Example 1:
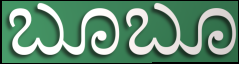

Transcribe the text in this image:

ಬೂಬೂ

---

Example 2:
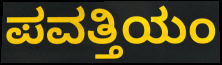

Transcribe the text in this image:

ಪವತ್ತಿಯಂ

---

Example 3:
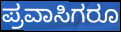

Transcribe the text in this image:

ಪ್ರವಾಸಿಗರೂ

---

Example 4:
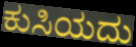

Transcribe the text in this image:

ಕುಸಿಯದು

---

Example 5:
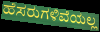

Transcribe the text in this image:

ಹೆಸರುಗಳಿವೆಯಲ್ಲ